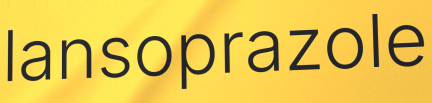
lansoprazole